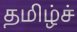
தமிழ்ச்